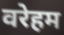
वरेहम